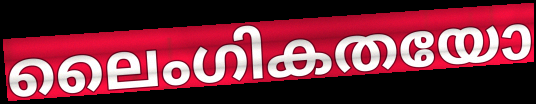
ലൈംഗികതയോ